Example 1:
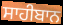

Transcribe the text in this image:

ਸਾਹੀਬਾਨ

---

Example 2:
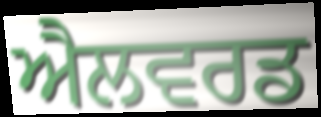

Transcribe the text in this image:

ਐਲਵਰਡ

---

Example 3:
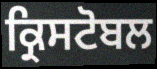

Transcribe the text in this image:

ਕ੍ਰਿਸਟੋਬਲ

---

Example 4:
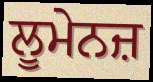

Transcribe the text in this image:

ਲੂਮੇਨਜ਼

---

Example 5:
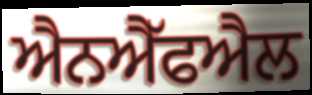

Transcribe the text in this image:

ਐਨਐੱਫਐਲ